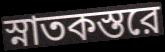
স্নাতকস্তরে